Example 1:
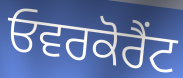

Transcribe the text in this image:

ਓਵਰਕੋਰੈਂਟ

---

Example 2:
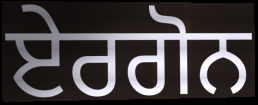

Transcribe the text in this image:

ਏਰਗੋਨ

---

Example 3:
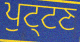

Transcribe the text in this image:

ਪੁਟ੍ਟਣ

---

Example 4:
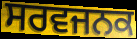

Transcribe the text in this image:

ਸਰਵਜਨਕ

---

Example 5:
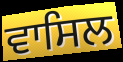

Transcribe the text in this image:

ਵਾਸਿਲ